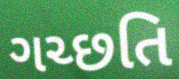
ગચ્છતિ